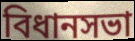
বিধানসভা